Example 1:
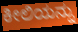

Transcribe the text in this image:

ಕೀಲಿಯನ್ನು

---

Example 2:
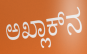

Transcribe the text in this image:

ಅಖ್ಲಾಕ್‍ನ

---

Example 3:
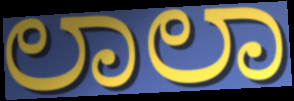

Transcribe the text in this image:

ಲಾಲಾ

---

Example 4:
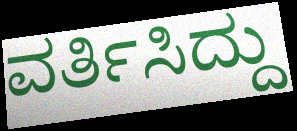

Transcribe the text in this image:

ವರ್ತಿಸಿದ್ದು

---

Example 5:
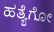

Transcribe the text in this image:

ಹತ್ಯೆಗೋ